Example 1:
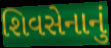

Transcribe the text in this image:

શિવસેનાનું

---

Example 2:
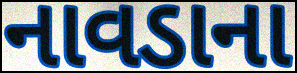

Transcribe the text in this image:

નાવડાના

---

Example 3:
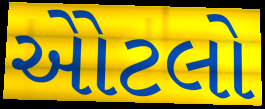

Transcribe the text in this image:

એોટલો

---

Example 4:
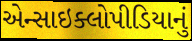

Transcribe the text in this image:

એન્સાઇક્લોપીડિયાનું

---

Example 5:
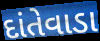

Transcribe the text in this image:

દાંતેવાડા